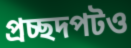
প্রচ্ছদপটও